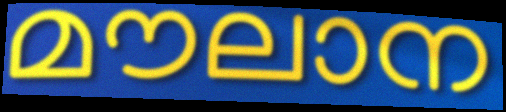
മൗലാന